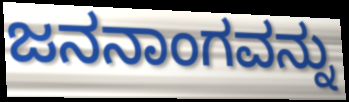
ಜನನಾಂಗವನ್ನು